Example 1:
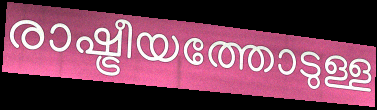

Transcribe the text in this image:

രാഷ്ട്രീയത്തോടുള്ള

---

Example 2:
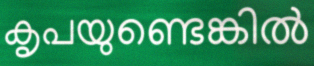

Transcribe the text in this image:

കൃപയുണ്ടെങ്കിൽ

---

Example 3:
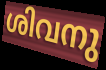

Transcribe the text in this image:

ശിവനു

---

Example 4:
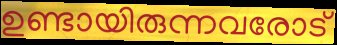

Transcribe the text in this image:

ഉണ്ടായിരുന്നവരോട്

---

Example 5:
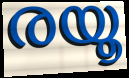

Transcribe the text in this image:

രയൂ